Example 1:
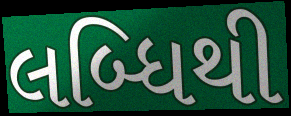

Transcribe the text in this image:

લબ્ધિથી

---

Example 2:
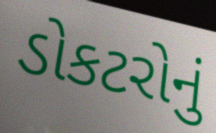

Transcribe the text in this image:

ડોકટરોનું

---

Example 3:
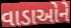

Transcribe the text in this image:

વાડાઓને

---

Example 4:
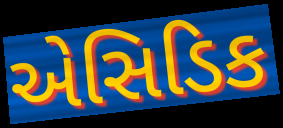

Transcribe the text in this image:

એસિડિક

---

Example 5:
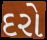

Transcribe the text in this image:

દરો